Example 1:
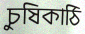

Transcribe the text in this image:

চুষিকাঠি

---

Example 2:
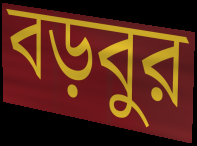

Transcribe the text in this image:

বড়বুর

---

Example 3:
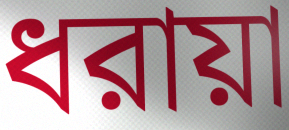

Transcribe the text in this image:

ধরায়া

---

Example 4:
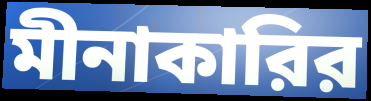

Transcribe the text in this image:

মীনাকারির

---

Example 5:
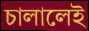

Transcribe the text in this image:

চালালেই